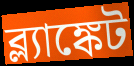
ব্ল্যাঙ্কেট